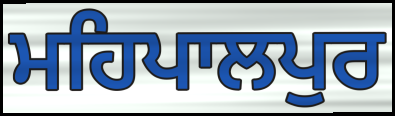
ਮਹਿਪਾਲਪੁਰ